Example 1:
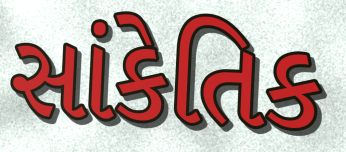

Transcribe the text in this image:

સાંકેતિક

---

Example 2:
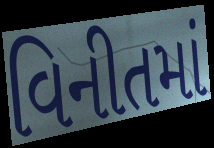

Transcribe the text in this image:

વિનીતમાં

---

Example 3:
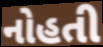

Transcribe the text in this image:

નોહતી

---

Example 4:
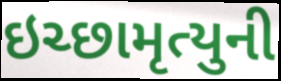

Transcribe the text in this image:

ઇચ્છામૃત્યુની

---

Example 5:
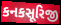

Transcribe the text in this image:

કનકસૂરિજી